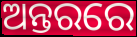
ଅନ୍ତରରେ